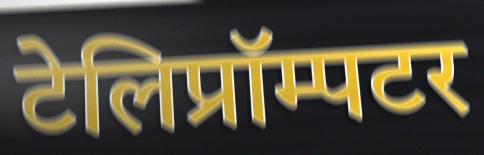
टेलिप्रॉम्पटर